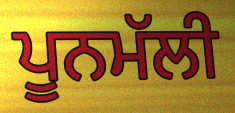
ਪੂਨਮੱਲੀ